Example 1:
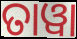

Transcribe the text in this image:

ତାୱା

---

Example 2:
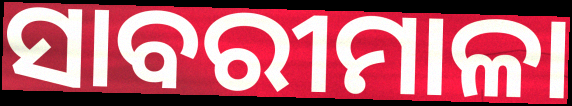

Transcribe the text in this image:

ସାବରୀମାଳା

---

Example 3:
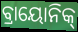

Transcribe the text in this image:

ବ୍ରାୟୋନିକ୍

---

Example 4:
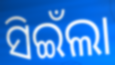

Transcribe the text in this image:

ସିଇଁଲା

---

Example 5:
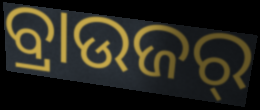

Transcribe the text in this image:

ବ୍ରାଉଜର୍